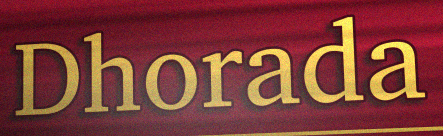
Dhorada